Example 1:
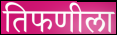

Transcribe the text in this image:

तिफणीला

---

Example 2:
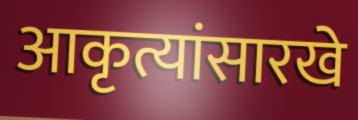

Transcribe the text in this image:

आकृत्यांसारखे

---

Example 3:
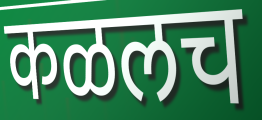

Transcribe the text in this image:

कळलच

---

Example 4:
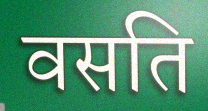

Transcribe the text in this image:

वसति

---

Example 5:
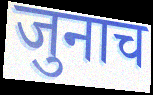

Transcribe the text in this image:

जुनाच